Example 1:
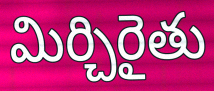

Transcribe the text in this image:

మిర్చిరైతు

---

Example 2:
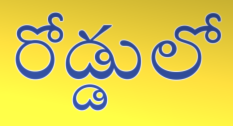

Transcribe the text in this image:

రోడ్డులో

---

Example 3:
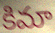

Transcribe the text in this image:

కిమా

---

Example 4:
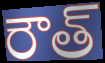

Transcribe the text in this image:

రౌత్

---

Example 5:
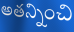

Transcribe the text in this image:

అతన్నించి